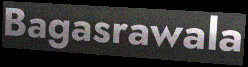
Bagasrawala